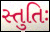
સ્તુતિઃ